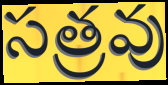
సత్రవు